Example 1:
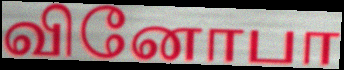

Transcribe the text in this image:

வினோபா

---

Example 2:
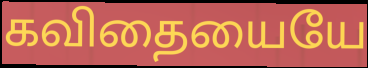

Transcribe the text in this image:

கவிதையையே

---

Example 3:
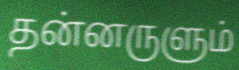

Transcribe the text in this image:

தன்னருளும்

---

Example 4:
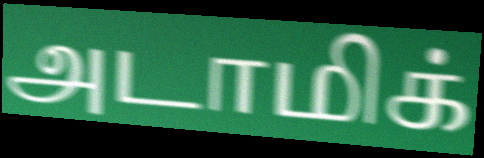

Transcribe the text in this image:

அடாமிக்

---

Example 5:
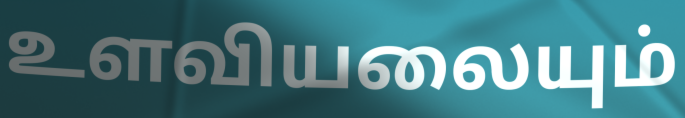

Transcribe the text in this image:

உளவியலையும்